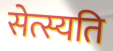
सेत्स्यति